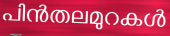
പിൻതലമുറകൾ